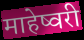
माहेष्वरी